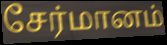
சேர்மானம்